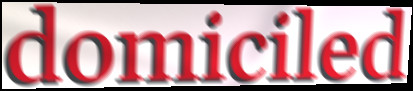
domiciled